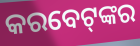
କରବେଟ୍‌ଙ୍କର